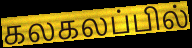
கலகலப்பில்